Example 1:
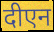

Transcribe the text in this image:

दीएन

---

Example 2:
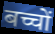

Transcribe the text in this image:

बच्‍चों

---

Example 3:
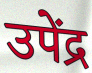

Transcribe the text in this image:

उपेंद्र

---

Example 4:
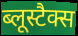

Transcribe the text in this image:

ब्लूस्टैक्स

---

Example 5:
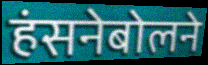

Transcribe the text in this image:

हंसनेबोलने